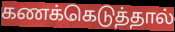
கணக்கெடுத்தால்